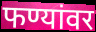
फण्यांवर